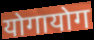
योगायोग